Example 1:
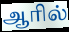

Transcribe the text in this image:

ஆரில்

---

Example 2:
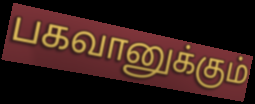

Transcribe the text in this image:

பகவானுக்கும்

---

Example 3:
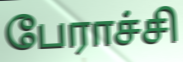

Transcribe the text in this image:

பேராச்சி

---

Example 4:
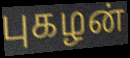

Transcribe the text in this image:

புகழன்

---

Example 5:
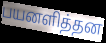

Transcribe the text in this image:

பயனளித்தன